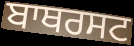
ਬਾਥਰਸਟ